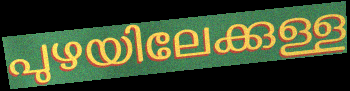
പുഴയിലേക്കുള്ള